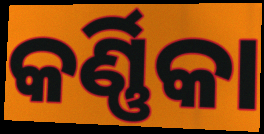
କର୍ଣ୍ଣିକା